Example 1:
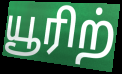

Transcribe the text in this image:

யூரிற்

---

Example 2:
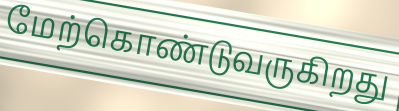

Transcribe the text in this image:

மேற்கொண்டுவருகிறது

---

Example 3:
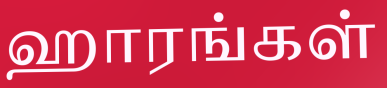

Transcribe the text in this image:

ஹாரங்கள்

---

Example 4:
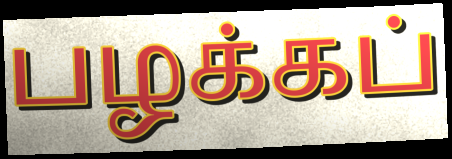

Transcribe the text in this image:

பழக்கப்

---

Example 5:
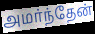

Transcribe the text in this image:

அமர்ந்தேன்